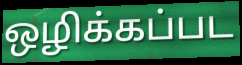
ஒழிக்கப்பட